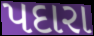
પદારા